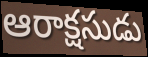
ఆరాక్షసుడు